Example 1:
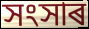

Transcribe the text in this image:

সংসাৰ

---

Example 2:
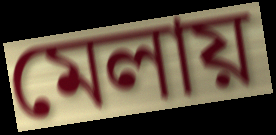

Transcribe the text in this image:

মেলায়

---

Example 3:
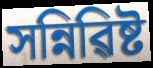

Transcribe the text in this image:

সন্নিৱিষ্ট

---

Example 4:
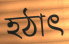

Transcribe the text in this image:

হঠাৎ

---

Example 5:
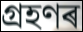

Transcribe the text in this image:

গ্ৰহণৰ